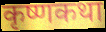
कृष्णकथा